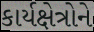
કાર્યક્ષેત્રોને